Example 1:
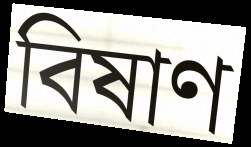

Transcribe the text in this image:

বিষাণ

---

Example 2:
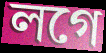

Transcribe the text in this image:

লগে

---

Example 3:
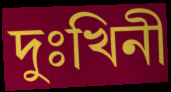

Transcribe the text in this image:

দুঃখিনী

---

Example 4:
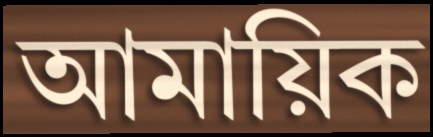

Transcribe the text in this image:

আমায়িক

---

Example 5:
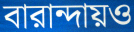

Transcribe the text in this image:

বারান্দায়ও